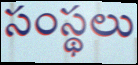
సంస్థలు